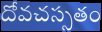
దోవచస్సతం